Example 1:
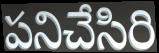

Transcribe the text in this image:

పనిచేసిరి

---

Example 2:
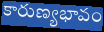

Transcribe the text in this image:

కారుణ్యభావం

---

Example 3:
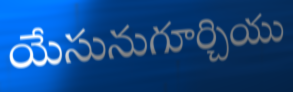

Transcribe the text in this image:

యేసునుగూర్చియు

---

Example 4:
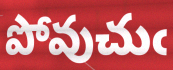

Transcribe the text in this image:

పోవుచుఁ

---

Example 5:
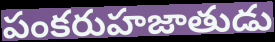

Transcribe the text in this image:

పంకరుహజాతుడు